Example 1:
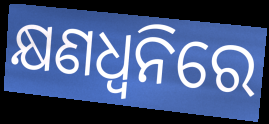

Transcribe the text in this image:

କ୍ଷଣଧ୍ୱନିରେ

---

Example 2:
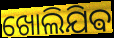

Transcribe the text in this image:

ଖୋଲିଯିଵ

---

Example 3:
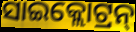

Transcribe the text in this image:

ସାଇକ୍ଲୋଟ୍ରନ୍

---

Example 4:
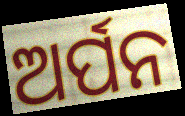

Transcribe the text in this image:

ଅର୍ପନ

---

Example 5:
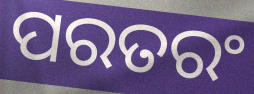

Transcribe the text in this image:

ପରତରଂ